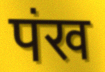
पंख